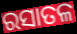
ରସାତଳ